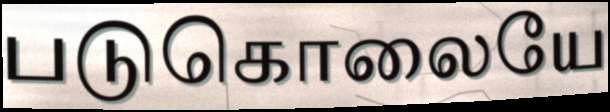
படுகொலையே